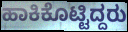
ಹಾಕಿಕೊಟ್ಟಿದ್ದರು